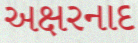
અક્ષરનાદ